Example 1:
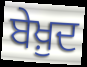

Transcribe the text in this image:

ਬੇਖ਼ੁਦ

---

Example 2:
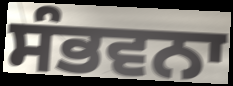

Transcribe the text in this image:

ਸੰਭਵਨਾ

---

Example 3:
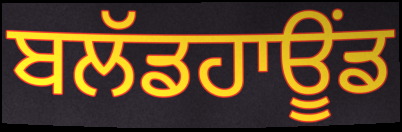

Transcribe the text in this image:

ਬਲੱਡਹਾਊਂਡ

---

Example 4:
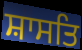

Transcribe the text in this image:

ਸ਼ਾਸਤਿ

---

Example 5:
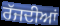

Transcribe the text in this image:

ਰੱਜਦੀਆਂ